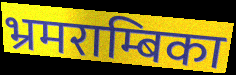
भ्रमराम्बिका